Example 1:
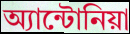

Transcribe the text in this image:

অ্যান্টোনিয়া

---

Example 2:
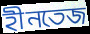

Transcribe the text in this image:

হীনতেজ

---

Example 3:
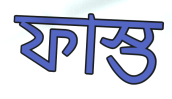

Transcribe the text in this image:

ফাস্ত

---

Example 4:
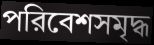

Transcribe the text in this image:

পরিবেশসমৃদ্ধ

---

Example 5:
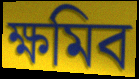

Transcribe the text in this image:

ক্ষমিব